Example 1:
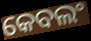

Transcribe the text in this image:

କେବଲଂ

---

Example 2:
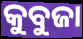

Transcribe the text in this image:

କୁବୁଜା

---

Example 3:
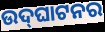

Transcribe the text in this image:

ଉଦ୍‌ଘାଟନର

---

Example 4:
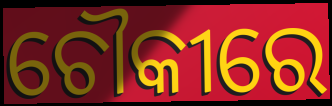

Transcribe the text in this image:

ଚୌକୀରେ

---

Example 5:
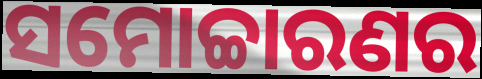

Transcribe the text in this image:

ସମୋଚ୍ଚାରଣର